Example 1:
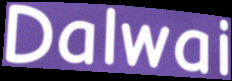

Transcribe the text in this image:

Dalwai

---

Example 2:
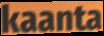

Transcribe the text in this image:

kaanta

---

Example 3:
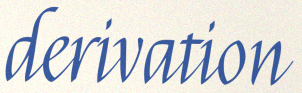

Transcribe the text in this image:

derivation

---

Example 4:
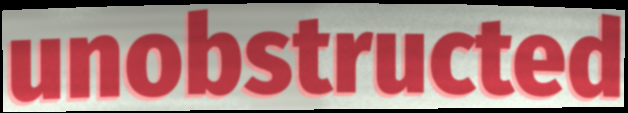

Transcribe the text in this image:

unobstructed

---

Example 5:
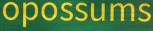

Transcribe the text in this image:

opossums